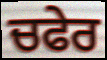
ਚਫੇਰ